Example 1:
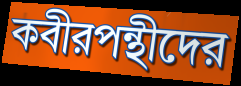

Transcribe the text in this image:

কবীরপন্থীদের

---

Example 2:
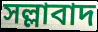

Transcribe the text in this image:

সল্লাবাদ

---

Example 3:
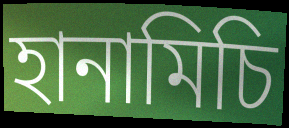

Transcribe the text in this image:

হানামিচি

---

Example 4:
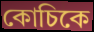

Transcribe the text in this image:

কোচিকে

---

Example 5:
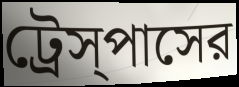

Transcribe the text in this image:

ট্রেস্‌পাসের